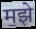
म॒झे